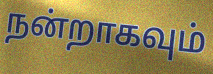
நன்றாகவும்